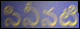
సినీనటి